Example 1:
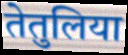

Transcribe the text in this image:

तेतुलिया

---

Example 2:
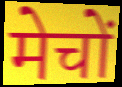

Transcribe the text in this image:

मेचों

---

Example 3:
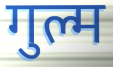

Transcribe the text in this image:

गुल्म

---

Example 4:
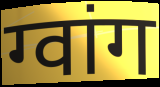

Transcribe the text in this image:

ग्वांग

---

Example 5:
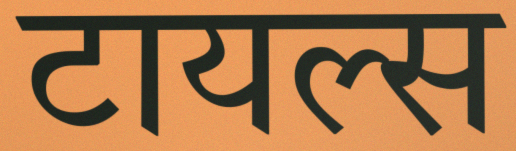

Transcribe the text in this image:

टायल्स